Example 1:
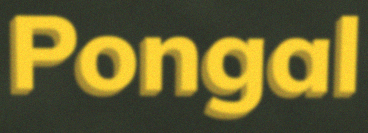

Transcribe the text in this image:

Pongal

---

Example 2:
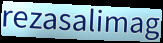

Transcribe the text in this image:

rezasalimag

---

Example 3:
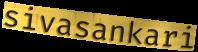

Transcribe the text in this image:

sivasankari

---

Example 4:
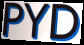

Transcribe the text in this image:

PYD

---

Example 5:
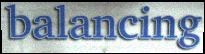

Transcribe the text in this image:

balancing